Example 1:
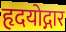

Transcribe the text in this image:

हृदयोद्गार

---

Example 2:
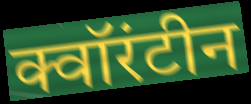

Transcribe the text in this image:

क्वॉरंटीन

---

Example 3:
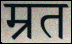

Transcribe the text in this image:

म्रत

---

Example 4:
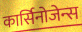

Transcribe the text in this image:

कार्सिनोजेन्स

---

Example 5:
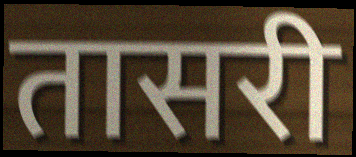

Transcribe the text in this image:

तासरी